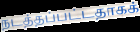
நடத்தப்பட்டதாகக்